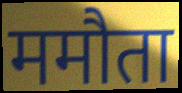
ममौता